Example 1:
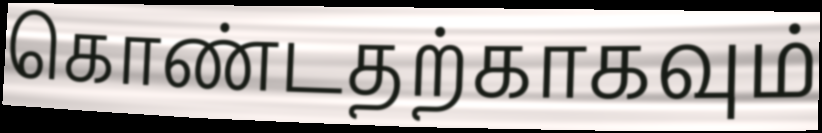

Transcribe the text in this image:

கொண்டதற்காகவும்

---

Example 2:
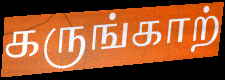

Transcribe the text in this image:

கருங்காற்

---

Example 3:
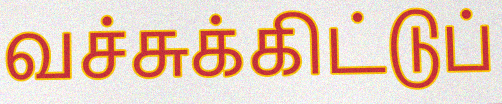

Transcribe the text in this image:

வச்சுக்கிட்டுப்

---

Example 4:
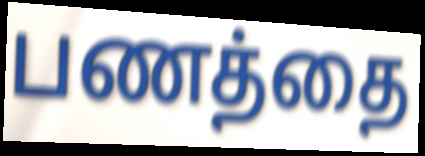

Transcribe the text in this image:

பணத்தை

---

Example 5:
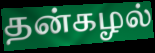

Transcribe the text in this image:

தன்கழல்